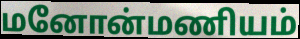
மனோன்மணியம்